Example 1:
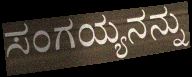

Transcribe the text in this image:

ಸಂಗಯ್ಯನನ್ನು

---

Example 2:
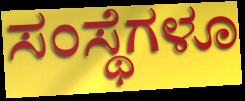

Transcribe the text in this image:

ಸಂಸ್ಥೆಗಳೂ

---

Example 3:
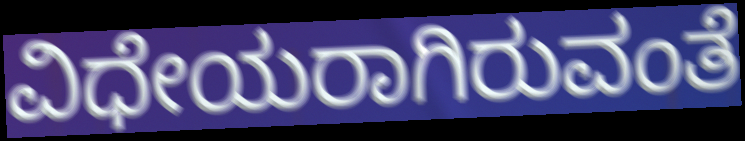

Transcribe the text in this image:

ವಿಧೇಯರಾಗಿರುವಂತೆ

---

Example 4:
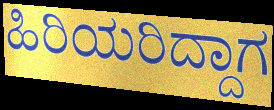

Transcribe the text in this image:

ಹಿರಿಯರಿದ್ದಾಗ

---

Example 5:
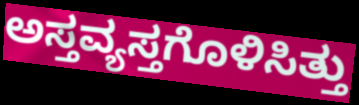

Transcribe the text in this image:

ಅಸ್ತವ್ಯಸ್ತಗೊಳಿಸಿತ್ತು